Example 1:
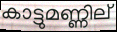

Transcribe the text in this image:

കാട്ടുമണ്ണില്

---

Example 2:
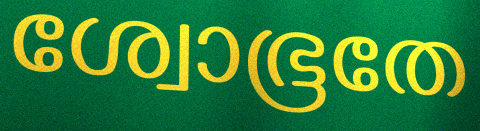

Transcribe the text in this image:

ശ്വോഭൂതേ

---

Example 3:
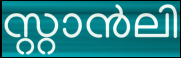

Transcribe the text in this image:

സ്റ്റാൻലി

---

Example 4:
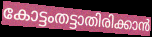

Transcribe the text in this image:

കോട്ടംതട്ടാതിരിക്കാൻ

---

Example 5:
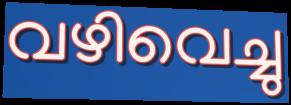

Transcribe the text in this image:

വഴിവെച്ചു